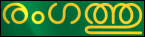
രംഗത്തു